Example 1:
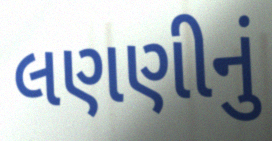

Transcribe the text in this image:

લણણીનું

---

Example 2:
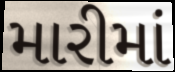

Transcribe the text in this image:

મારીમાં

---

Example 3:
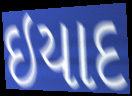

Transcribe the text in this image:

ઇયાદ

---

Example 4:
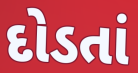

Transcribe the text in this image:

દોડતાં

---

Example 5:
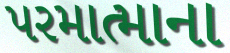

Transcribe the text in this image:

પરમાત્માના